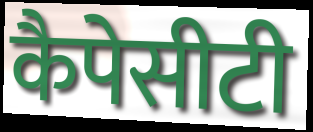
कैपेसीटी